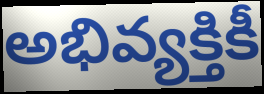
అభివ్యక్తికీ